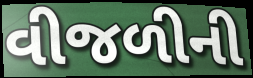
વીજળીની